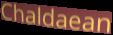
Chaldaean